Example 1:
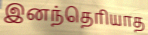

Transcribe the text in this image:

இனந்தெரியாத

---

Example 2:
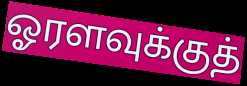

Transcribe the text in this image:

ஓரளவுக்குத்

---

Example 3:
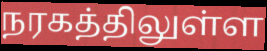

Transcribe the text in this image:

நரகத்திலுள்ள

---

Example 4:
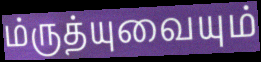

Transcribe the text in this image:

ம்ருத்யுவையும்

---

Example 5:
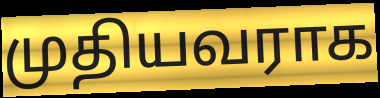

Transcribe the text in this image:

முதியவராக